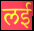
लई